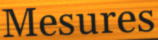
Mesures